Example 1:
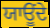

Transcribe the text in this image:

ਯਾਊਂਦੇ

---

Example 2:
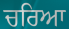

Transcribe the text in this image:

ਚਰਿਆ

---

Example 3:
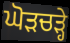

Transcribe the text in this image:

ਘੋੜਚੜ੍ਹੇ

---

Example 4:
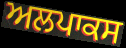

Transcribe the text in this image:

ਅਲਪਾਕਸ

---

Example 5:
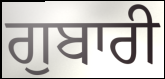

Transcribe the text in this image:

ਗੁਬਾਰੀ